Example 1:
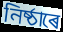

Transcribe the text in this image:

নিষ্ঠাৰে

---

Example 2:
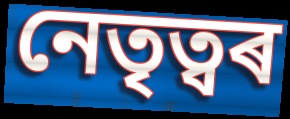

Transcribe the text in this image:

নেতৃত্বৰ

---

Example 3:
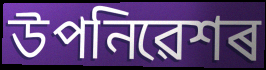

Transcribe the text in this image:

উপনিৱেশৰ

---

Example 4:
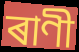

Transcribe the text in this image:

ৰাণী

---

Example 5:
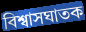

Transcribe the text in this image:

বিশ্বাসঘাতক